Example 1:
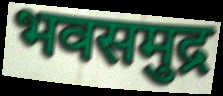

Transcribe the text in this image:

भवसमुद्र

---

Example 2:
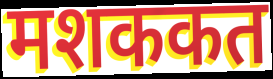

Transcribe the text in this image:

मशककत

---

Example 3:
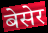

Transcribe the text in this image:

बेसेर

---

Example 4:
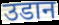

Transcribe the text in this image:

उडान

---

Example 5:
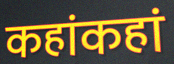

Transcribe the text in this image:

कहांकहां